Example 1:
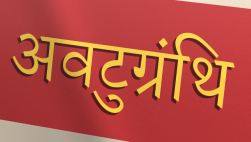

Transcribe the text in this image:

अवटुग्रंथि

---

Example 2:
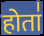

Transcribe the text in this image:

होता॑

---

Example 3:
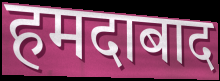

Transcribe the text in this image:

हमदाबाद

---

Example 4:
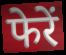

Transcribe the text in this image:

फेरें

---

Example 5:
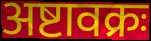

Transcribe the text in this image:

अष्टावक्रः